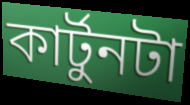
কার্টুনটা